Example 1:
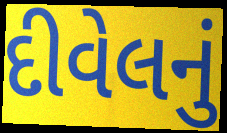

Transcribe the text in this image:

દીવેલનું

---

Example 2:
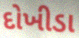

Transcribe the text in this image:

દોખીડા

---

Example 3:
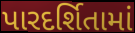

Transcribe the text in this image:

પારદર્શિતામાં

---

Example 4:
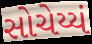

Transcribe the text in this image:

સોચેય્યં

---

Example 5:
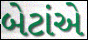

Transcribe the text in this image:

બેટાંએ